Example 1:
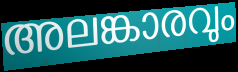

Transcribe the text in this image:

അലങ്കാരവും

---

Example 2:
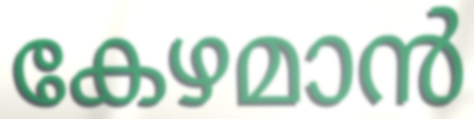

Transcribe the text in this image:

കേഴമാൻ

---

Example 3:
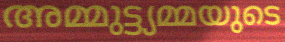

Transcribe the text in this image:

അമ്മുട്ട്യമ്മയുടെ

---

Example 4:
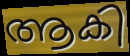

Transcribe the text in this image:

ആകി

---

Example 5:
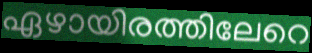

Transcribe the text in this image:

ഏഴായിരത്തിലേറെ